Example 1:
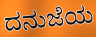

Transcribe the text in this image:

ದನುಜೆಯ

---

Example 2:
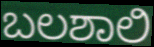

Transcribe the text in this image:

ಬಲಶಾಲಿ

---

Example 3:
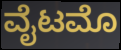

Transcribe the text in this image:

ವೈಟಮೊ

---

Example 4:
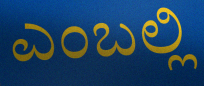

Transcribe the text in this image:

ಎಂಬಲ್ಲಿ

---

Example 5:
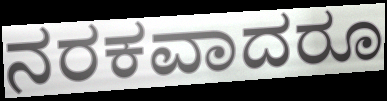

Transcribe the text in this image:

ನರಕವಾದರೂ